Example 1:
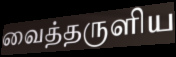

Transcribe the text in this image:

வைத்தருளிய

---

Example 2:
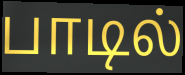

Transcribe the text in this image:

பாடில்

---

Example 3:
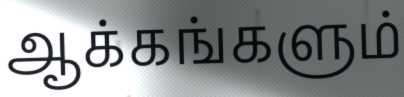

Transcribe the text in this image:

ஆக்கங்களும்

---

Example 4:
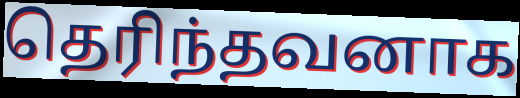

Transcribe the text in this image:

தெரிந்தவனாக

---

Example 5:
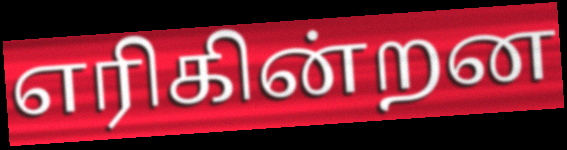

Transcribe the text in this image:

எரிகின்றன